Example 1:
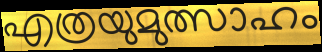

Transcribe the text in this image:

എത്രയുമുത്സാഹം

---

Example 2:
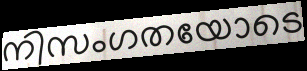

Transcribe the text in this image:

നിസംഗതയോടെ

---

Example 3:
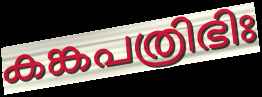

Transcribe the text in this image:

കങ്കപത്രിഭിഃ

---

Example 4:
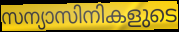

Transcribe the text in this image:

സന്യാസിനികളുടെ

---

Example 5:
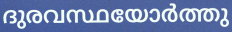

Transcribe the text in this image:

ദുരവസ്ഥയോർത്തു